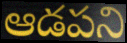
ఆడపని